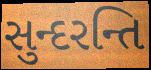
સુન્દરન્તિ